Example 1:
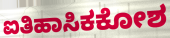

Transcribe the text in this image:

ಐತಿಹಾಸಿಕಕೋಶ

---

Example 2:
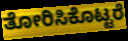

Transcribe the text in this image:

ತೋರಿಸಿಕೊಟ್ಟರೆ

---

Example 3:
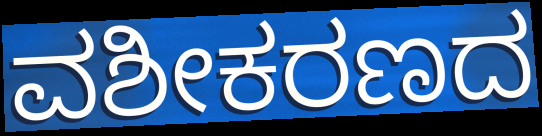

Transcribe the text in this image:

ವಶೀಕರಣದ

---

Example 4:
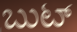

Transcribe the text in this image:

ಬುಟ್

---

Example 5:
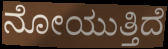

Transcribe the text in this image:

ನೋಯುತ್ತಿದೆ